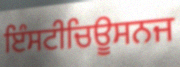
ਇੰਸਟੀਚਿਊਸਨਜ